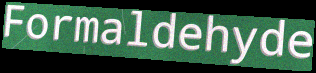
Formaldehyde